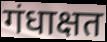
गंधाक्षत